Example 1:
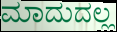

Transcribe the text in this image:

ಮಾದುದಲ್ಲ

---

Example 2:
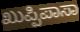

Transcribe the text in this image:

ಖುಪ್ಪಿಪಾಸಾ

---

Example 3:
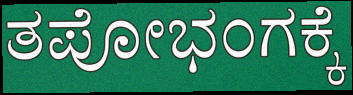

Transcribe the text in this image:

ತಪೋಭಂಗಕ್ಕೆ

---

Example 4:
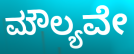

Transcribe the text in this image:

ಮೌಲ್ಯವೇ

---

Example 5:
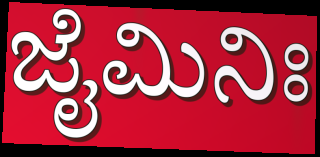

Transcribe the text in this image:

ಜೈಮಿನಿಃ